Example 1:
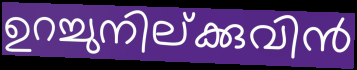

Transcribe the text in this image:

ഉറച്ചുനില്ക്കുവിൻ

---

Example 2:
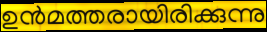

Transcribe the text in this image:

ഉൻമത്തരായിരിക്കുന്നു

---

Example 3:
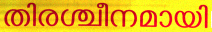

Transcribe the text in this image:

തിരശ്ചീനമായി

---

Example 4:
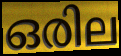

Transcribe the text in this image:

ഒരില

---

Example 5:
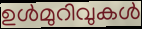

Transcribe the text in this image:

ഉൾമുറിവുകൾ